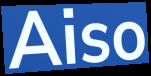
Aiso